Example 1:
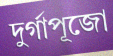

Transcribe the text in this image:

দুর্গাপূজো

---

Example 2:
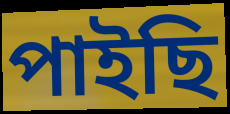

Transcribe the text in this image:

পাইছি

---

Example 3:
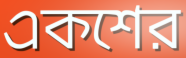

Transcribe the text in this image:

একশের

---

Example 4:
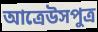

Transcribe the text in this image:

আত্রেউসপুত্র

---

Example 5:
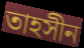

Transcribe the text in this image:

তাহসীন